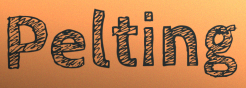
Pelting